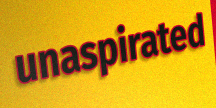
unaspirated